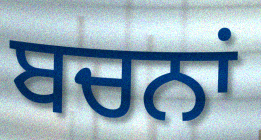
ਬਚਨਾਂ